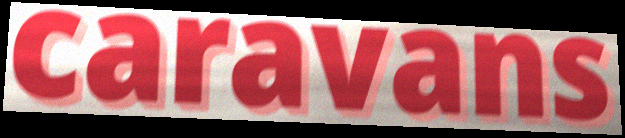
caravans